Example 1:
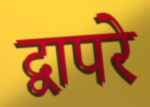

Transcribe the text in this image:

द्वापरे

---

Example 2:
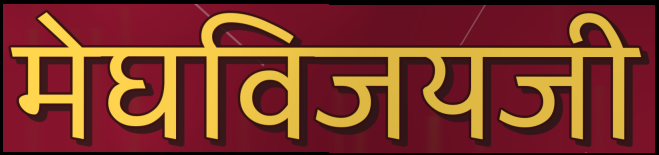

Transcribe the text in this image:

मेघविजयजी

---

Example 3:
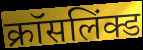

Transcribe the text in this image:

क्रॉसलिंक्ड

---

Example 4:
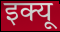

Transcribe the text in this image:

इक्यू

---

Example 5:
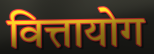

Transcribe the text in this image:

वित्तायोग